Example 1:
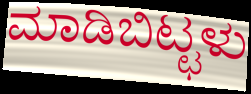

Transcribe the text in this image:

ಮಾಡಿಬಿಟ್ಟಳು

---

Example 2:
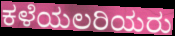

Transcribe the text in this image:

ಕಳೆಯಲರಿಯರು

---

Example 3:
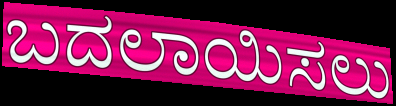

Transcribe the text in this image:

ಬದಲಾಯಿಸಲು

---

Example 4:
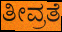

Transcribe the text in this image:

ತೀವ್ರತೆ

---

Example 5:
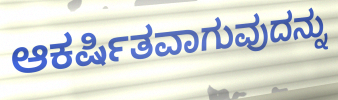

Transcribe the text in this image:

ಆಕರ್ಷಿತವಾಗುವುದನ್ನು